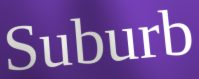
Suburb